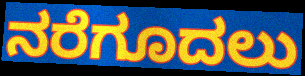
ನರೆಗೂದಲು